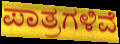
ಪಾತ್ರಗಳಿವೆ